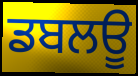
ਡਬਲਊ